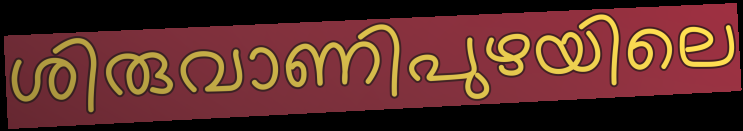
ശിരുവാണിപുഴയിലെ